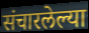
संचारलेल्या